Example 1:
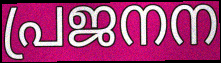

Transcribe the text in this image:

പ്രജനന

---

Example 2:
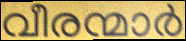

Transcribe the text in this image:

വീരന്മാർ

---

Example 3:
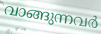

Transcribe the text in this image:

വാങ്ങുന്നവർ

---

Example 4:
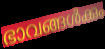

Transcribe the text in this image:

ഭാവങ്ങൾക്കും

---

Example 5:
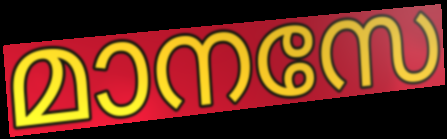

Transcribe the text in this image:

മാനസേ